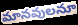
మానవులనూ